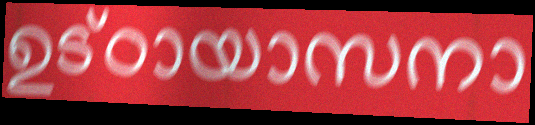
ഉട്ഠായാസനാ